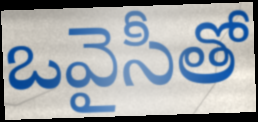
ఒవైసీతో